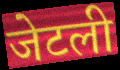
जेटली